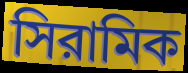
সিরামিক